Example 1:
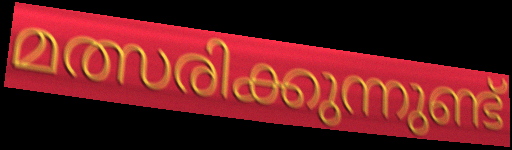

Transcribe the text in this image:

മത്സരിക്കുന്നുണ്ട്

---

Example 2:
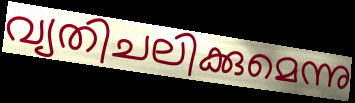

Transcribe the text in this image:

വ്യതിചലിക്കുമെന്നു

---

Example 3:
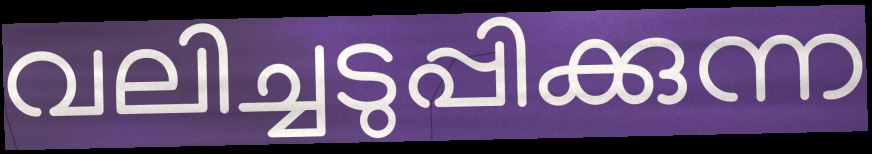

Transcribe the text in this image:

വലിച്ചടുപ്പിക്കുന്ന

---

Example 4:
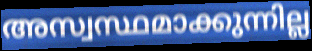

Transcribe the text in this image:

അസ്വസ്ഥമാക്കുന്നില്ല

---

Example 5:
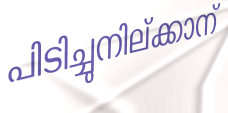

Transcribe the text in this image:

പിടിച്ചുനില്ക്കാന്